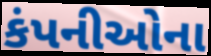
કંપનીઓના